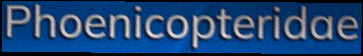
Phoenicopteridae